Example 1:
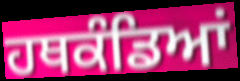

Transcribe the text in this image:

ਹਥਕੰਡਿਆਂ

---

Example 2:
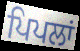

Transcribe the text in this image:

ਪਿਪਲਾਂ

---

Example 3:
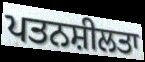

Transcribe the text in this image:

ਪਤਨਸ਼ੀਲਤਾ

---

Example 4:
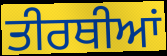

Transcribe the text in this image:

ਤੀਰਥੀਆਂ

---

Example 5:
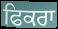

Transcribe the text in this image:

ਫਿਕਰਾ